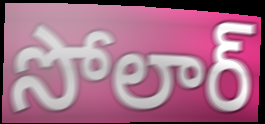
సోలార్